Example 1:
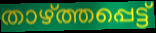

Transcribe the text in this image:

താഴ്ത്തപ്പെട്ട്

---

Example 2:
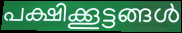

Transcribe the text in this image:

പക്ഷിക്കൂട്ടങ്ങൾ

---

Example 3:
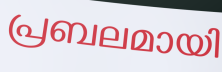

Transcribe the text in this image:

പ്രബലമായി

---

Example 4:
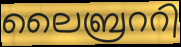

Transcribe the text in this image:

ലൈബ്രററി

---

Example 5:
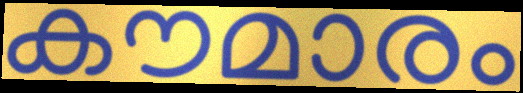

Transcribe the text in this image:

കൗമാരം